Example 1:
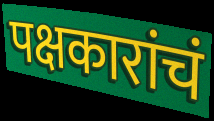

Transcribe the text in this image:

पक्षकारांचं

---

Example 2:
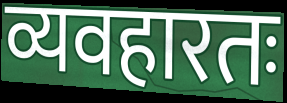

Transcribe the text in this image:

व्यवहारतः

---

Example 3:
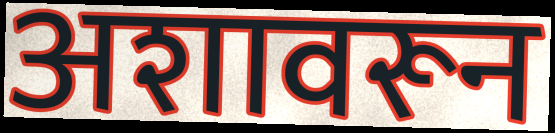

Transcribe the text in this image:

अशावरून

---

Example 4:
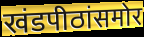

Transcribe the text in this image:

खंडपीठांसमोर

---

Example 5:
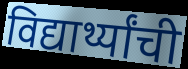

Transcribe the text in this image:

विद्यार्थ्यांची